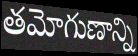
తమోగుణాన్ని